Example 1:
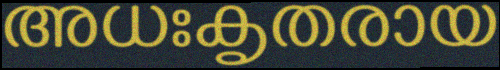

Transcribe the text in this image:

അധഃകൃതരായ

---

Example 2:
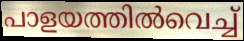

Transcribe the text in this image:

പാളയത്തിൽവെച്ച്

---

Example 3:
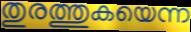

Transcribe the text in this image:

തുരത്തുകയെന്ന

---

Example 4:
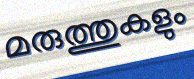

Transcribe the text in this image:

മരുത്തുകളും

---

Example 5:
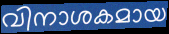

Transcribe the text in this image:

വിനാശകമായ